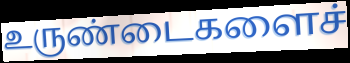
உருண்டைகளைச்